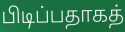
பிடிப்பதாகத்